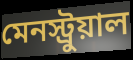
মেনস্ট্রুয়াল